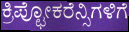
ಕ್ರಿಪ್ಟೋಕರೆನ್ಸಿಗಳಿಗೆ